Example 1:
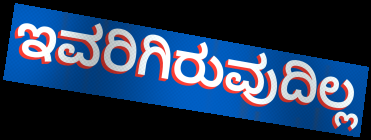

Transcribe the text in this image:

ಇವರಿಗಿರುವುದಿಲ್ಲ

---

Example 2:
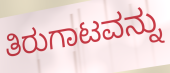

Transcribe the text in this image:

ತಿರುಗಾಟವನ್ನು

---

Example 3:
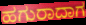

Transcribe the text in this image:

ಹಗುರಾದಾಗ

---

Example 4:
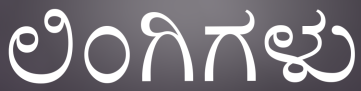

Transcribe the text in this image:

ಲಿಂಗಿಗಳು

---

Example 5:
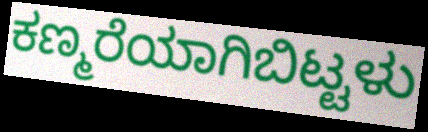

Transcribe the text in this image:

ಕಣ್ಮರೆಯಾಗಿಬಿಟ್ಟಳು